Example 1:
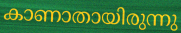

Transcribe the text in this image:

കാണാതായിരുന്നു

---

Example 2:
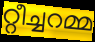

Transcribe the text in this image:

റ്റീച്ചറമ്മ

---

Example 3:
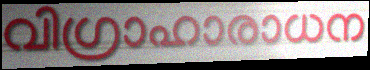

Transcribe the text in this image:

വിഗ്രാഹാരാധന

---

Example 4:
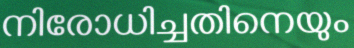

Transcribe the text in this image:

നിരോധിച്ചതിനെയും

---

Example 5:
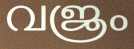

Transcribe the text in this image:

വജ്രം